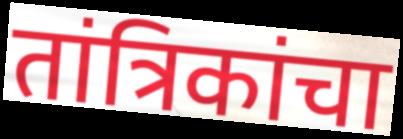
तांत्रिकांचा